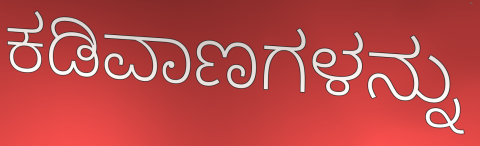
ಕಡಿವಾಣಗಳನ್ನು